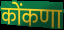
कोंकणा